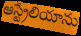
ఆస్ట్రేలియాను